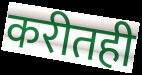
करीतही